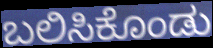
ಬಲಿಸಿಕೊಂಡು